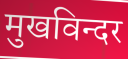
मुखविन्दर